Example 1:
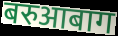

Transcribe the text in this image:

बरुआबाग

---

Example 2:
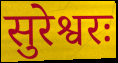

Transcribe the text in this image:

सुरेश्वरः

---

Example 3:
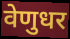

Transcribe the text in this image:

वेणुधर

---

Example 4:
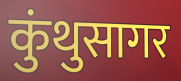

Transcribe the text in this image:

कुंथुसागर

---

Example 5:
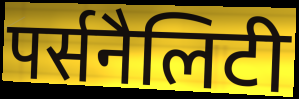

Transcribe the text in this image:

पर्सनैलिटी